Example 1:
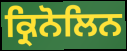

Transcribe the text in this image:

ਕ੍ਰਿਨੋਲਿਨ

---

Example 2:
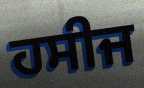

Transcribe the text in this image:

ਹਸੀਜ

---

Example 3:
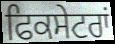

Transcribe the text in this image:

ਫਿਕਸੇਟਰਾਂ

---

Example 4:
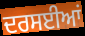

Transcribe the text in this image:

ਦਰਸਈਆਂ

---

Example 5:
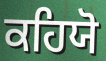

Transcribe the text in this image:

ਕਹਿਯੋ